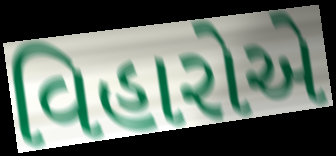
વિહારોએ